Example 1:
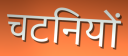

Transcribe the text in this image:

चटनियों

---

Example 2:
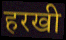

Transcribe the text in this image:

हरखी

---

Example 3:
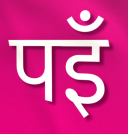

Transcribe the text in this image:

पइँ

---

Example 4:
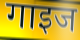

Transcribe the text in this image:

गाइज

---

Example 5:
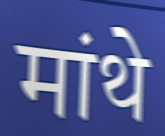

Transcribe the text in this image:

मांथे